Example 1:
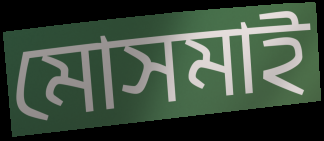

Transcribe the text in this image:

মোসমাই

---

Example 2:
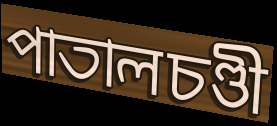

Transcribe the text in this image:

পাতালচণ্ডী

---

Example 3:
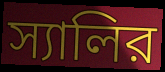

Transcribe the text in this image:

স্যালির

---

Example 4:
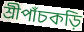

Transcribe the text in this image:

শ্রীপাঁচকড়ি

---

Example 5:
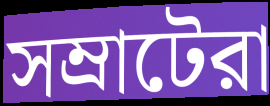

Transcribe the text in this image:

সম্রাটেরা